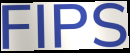
FIPS